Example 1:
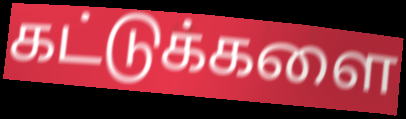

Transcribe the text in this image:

கட்டுக்களை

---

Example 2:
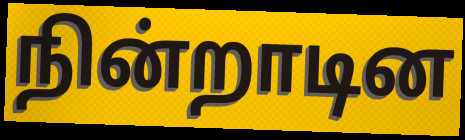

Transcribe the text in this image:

நின்றாடின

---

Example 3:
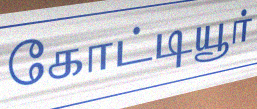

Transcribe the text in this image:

கோட்டியூர்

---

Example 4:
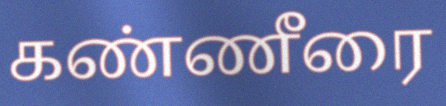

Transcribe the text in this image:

கண்ணீரை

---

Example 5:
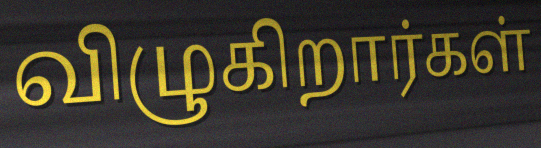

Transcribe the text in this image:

விழுகிறார்கள்